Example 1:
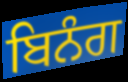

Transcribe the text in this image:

ਬਿਨੰਗ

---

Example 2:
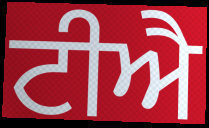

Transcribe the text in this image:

ਟੀਐ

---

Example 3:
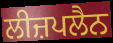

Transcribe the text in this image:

ਲੀਜ਼ਪਲੈਨ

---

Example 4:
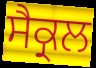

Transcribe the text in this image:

ਸੈਕ੍ਰਲ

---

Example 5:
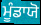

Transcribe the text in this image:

ਮੂੰਡਾਯੋ